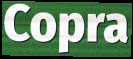
Copra